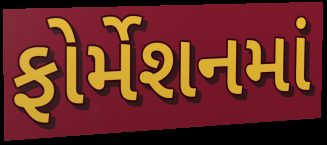
ફોર્મેશનમાં